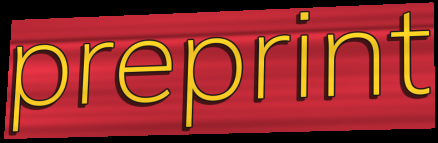
preprint